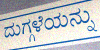
ದುಗ್ಗಳೆಯನ್ನು